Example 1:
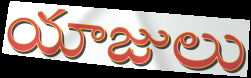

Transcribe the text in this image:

యాజులు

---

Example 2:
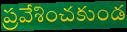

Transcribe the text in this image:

ప్రవేశించకుండ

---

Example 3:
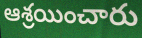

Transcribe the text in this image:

ఆశ్రయించారు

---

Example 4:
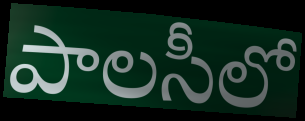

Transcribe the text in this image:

పాలసీలో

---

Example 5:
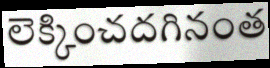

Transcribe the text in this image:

లెక్కించదగినంత